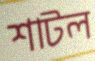
শাটল